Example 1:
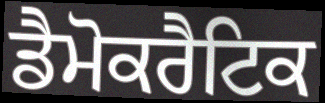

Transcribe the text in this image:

ਡੈਮੋਕਰੈਟਿਕ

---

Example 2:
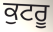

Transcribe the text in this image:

ਕੁਟਰੂ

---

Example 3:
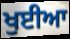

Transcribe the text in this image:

ਖੁਈਆ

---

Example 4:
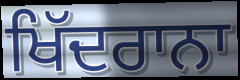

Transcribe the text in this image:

ਖਿੱਦਰਾਨਾ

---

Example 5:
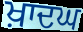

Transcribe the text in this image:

ਖ਼ਾਦਘ